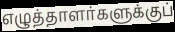
எழுத்தாளர்களுக்குப்